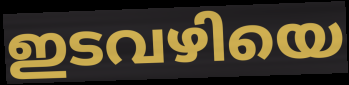
ഇടവഴിയെ